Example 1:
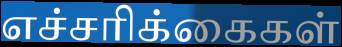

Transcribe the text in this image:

எச்சரிக்கைகள்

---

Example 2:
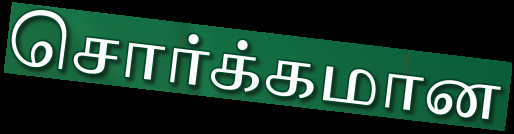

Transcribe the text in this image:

சொர்க்கமான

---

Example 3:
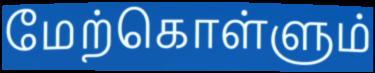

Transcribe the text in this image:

மேற்கொள்ளும்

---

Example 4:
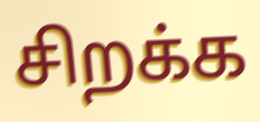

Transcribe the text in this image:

சிறக்க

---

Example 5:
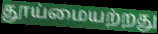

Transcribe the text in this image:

தூய்மையற்றது